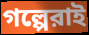
গল্পেরাই